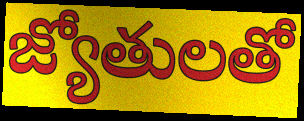
జ్యోతులతో